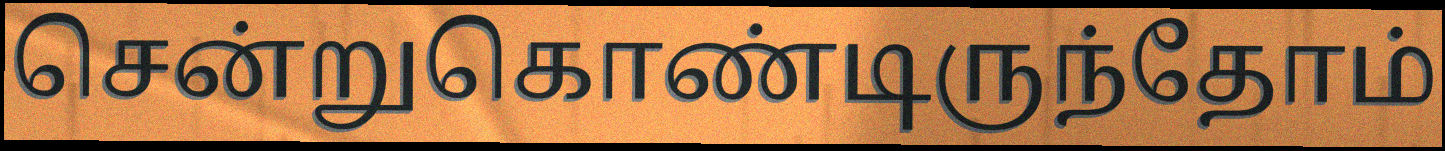
சென்றுகொண்டிருந்தோம்